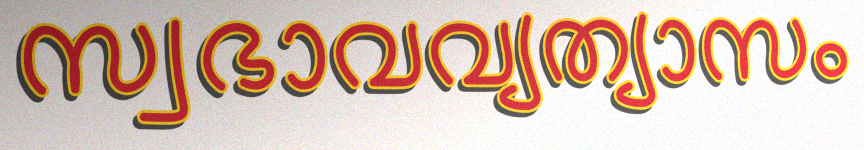
സ്വഭാവവ്യത്യാസം